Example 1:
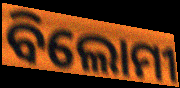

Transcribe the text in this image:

ବିଲୋମୀ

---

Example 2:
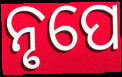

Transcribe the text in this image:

ନୃପେ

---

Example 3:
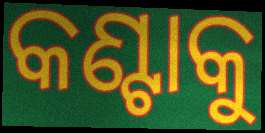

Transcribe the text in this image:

କଣ୍ଟାକୁ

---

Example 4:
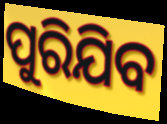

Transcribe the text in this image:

ପୁରିଯିବ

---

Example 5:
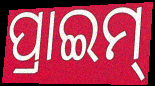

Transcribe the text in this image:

ପ୍ରାଇମ୍